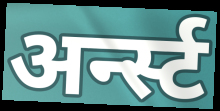
अर्न्स्ट